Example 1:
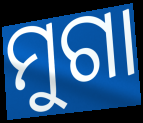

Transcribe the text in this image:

ମୁଗା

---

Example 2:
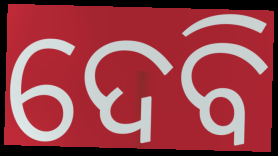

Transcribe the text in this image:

ଦେବି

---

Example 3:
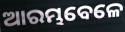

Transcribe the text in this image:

ଆରମ୍ଭବେଳେ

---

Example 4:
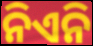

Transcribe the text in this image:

ନିଏନି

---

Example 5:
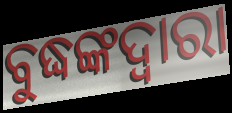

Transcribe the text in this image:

ବୁଦ୍ଧଙ୍କଦ୍ଵାରା